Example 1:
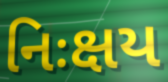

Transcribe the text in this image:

નિઃક્ષય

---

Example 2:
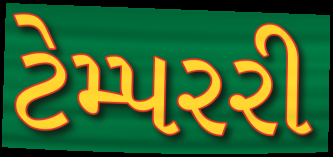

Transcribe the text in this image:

ટેમ્પરરી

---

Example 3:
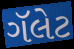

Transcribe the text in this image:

ગૅલેટ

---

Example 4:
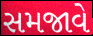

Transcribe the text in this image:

સમજાવે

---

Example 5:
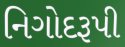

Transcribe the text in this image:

નિગોદરૂપી